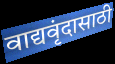
वाद्यवृंदासाठी